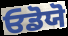
ਓਡੋਯੋ